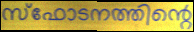
സ്ഫോടനത്തിന്റെ